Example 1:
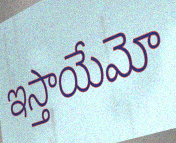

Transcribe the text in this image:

ఇస్తాయేమో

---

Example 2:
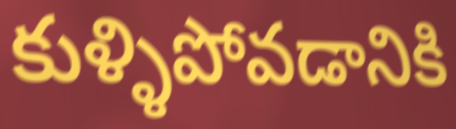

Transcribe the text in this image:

కుళ్ళిపోవడానికి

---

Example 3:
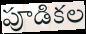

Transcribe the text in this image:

పూడికల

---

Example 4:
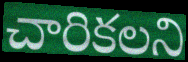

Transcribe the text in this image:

చారికలని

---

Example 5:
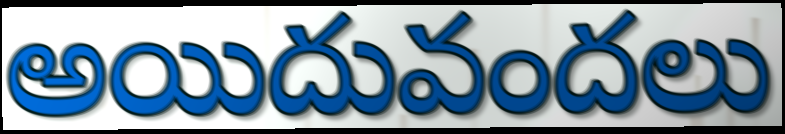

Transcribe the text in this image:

అయిదువందలు